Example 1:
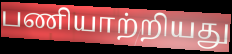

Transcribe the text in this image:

பணியாற்றியது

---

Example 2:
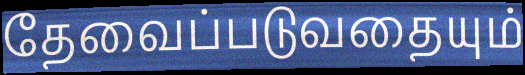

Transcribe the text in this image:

தேவைப்படுவதையும்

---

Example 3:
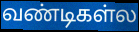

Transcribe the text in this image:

வண்டிகள்ல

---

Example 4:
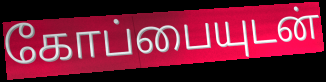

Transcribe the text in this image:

கோப்பையுடன்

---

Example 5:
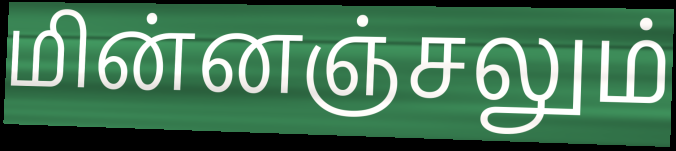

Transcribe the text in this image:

மின்னஞ்சலும்